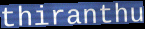
thiranthu